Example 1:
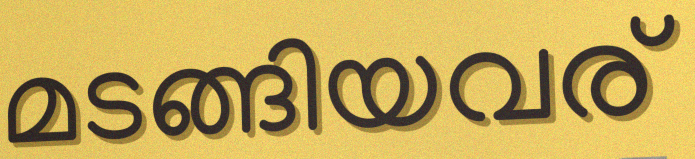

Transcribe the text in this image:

മടങ്ങിയവര്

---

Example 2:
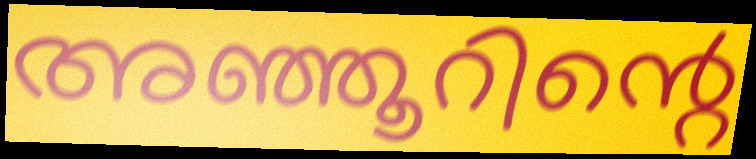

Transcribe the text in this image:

അഞ്ഞൂറിന്റെ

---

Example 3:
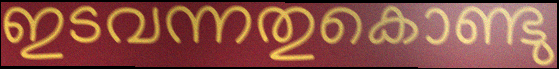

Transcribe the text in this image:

ഇടവന്നതുകൊണ്ടു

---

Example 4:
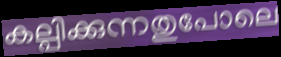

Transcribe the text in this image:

കല്പിക്കുന്നതുപോലെ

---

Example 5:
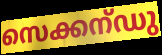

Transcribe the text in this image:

സെക്കന്ഡു